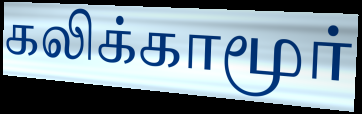
கலிக்காமூர்